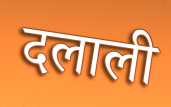
दलाली